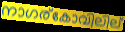
നാഗര്കോവിലില്